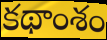
కథాంశం